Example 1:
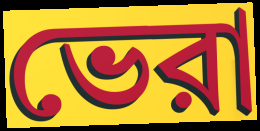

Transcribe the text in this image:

ভেরা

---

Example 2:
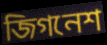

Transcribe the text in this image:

জিগনেশ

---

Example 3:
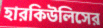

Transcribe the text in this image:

হারকিউলিসের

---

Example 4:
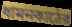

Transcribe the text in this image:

ধামনকাঠের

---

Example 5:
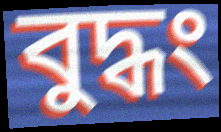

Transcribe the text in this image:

বুদ্ধং